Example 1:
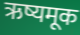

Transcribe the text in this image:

ऋष्यमूक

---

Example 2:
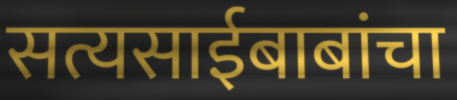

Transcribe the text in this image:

सत्यसाईबाबांचा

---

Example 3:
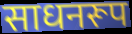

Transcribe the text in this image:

साधनरूप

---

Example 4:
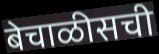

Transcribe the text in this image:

बेचाळीसची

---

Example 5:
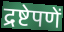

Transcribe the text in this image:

द्रष्टेपणें